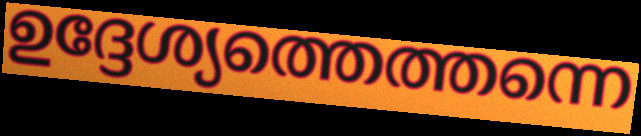
ഉദ്ദേശ്യത്തെത്തന്നെ